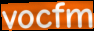
vocfm